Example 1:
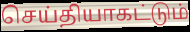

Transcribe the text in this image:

செய்தியாகட்டும்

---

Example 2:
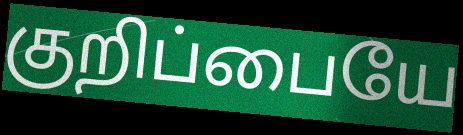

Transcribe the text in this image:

குறிப்பையே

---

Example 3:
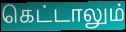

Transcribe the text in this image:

கெட்டாலும்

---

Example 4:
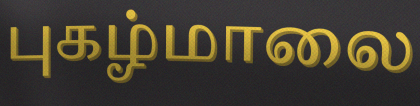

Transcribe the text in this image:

புகழ்மாலை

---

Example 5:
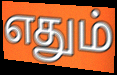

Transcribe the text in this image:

எதும்